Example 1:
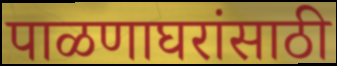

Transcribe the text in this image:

पाळणाघरांसाठी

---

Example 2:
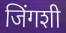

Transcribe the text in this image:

जिंगशी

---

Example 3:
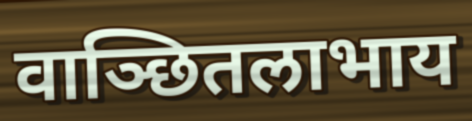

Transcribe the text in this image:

वाञ्छितलाभाय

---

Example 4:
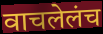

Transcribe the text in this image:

वाचलेलंच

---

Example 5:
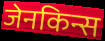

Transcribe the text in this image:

जेनकिन्स